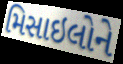
મિસાઇલોને